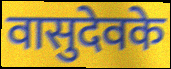
वासुदेवके